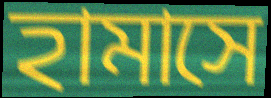
হামাসে